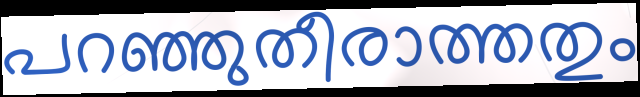
പറഞ്ഞുതീരാത്തതും